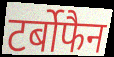
टर्बोफैन